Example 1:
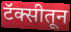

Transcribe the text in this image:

टॅक्‍सीतून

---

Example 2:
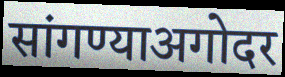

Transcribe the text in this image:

सांगण्याअगोदर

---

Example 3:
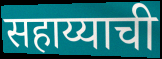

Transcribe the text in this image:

सहाय्याची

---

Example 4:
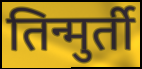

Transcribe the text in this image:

तिन्मुर्ती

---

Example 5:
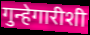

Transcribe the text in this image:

गुन्हेगारीशी